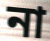
না